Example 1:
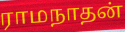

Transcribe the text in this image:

ராமநாதன்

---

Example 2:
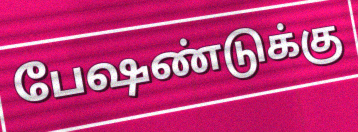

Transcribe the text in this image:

பேஷண்டுக்கு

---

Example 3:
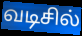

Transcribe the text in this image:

வடிசில்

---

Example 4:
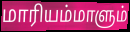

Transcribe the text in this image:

மாரியம்மாளும்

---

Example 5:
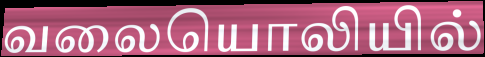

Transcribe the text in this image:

வலையொலியில்